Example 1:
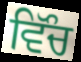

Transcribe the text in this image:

ਵਿੱੰਚ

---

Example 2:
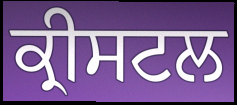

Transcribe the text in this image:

ਕ੍ਰੀਸਟਲ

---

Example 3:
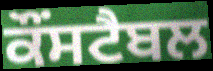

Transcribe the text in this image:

ਕੌਂਸਟੈਬਲ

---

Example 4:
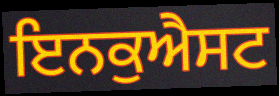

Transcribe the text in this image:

ਇਨਕੁਐਸਟ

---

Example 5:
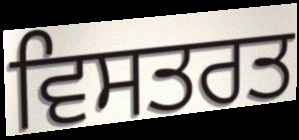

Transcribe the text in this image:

ਵਿਸਤਰਤ